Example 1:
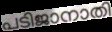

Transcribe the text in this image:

പടിജാനാതി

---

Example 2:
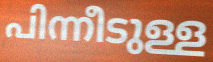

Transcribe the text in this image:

പിന്നീടുള്ള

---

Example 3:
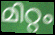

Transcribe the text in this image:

മിറ്റം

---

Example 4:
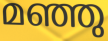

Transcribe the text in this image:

മഞ്ഞു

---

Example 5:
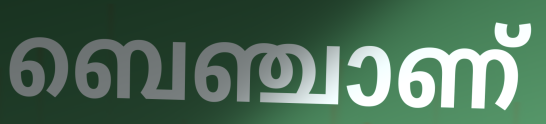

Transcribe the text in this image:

ബെഞ്ചാണ്